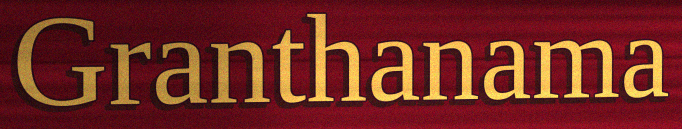
Granthanama